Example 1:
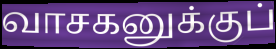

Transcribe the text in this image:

வாசகனுக்குப்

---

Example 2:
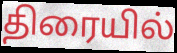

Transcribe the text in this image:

திரையில்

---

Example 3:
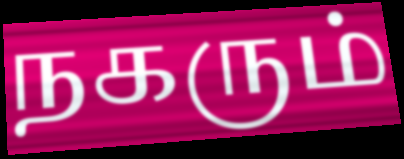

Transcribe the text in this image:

நகரும்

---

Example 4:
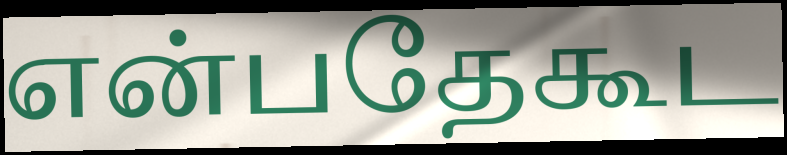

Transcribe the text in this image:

என்பதேகூட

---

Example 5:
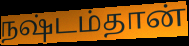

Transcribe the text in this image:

நஷ்டம்தான்